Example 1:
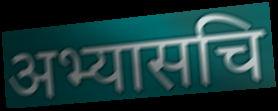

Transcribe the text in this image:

अभ्यासचि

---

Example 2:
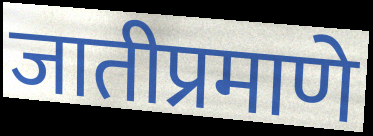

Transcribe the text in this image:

जातीप्रमाणे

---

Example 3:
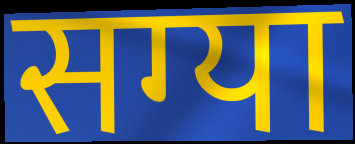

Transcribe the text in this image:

सग्या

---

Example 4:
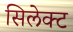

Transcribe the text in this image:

सिलेक्ट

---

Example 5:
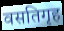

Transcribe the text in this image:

वसतिगृह